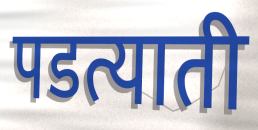
पडत्याती